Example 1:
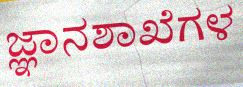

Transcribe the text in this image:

ಜ್ಞಾನಶಾಖೆಗಳ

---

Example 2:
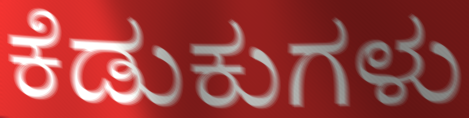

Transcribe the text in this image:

ಕೆಡುಕುಗಳು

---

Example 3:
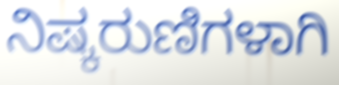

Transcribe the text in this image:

ನಿಷ್ಕರುಣಿಗಳಾಗಿ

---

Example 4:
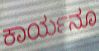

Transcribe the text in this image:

ಕಾರ್ಯನೂ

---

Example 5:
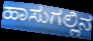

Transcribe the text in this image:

ಹಾಸುಗಲ್ಲಿನ